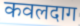
कवलदाग